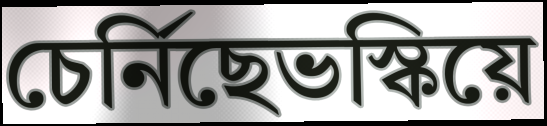
চেৰ্নিছেভস্কিয়ে